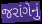
જરાંગેનું